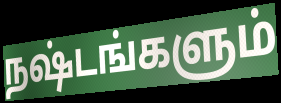
நஷ்டங்களும்